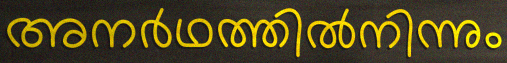
അനർഥത്തിൽനിന്നും